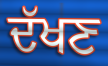
ਦੱਖਣ